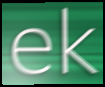
ek